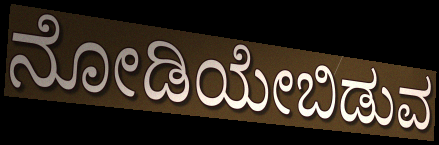
ನೋಡಿಯೇಬಿಡುವ